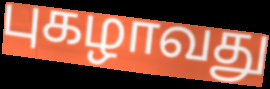
புகழாவது